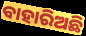
ବାହାରିଅଛି